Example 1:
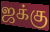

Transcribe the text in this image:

ஜக்கு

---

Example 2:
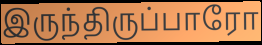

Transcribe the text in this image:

இருந்திருப்பாரோ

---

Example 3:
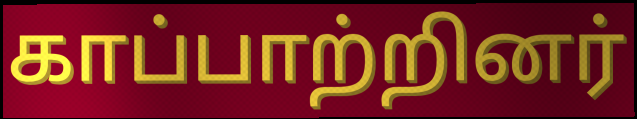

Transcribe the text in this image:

காப்பாற்றினர்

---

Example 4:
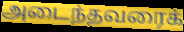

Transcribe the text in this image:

அடைந்தவரைக்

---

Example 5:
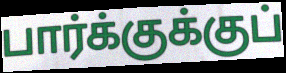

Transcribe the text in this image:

பார்க்குக்குப்